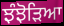
ਝੰਝੋੜਿਆ